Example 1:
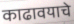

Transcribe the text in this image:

काढावयाचे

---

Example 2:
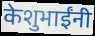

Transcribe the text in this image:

केशुभाईंनी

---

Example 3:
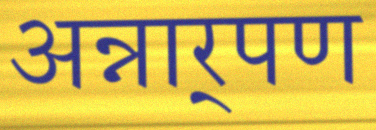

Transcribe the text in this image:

अन्नार्पण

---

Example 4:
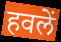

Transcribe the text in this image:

हवलें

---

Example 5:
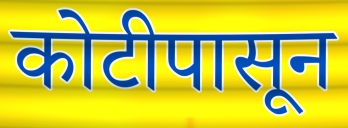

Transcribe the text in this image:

कोटीपासून